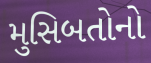
મુસિબતોનો